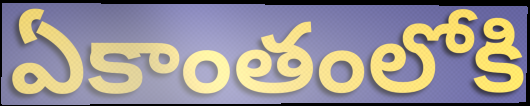
ఏకాంతంలోకి